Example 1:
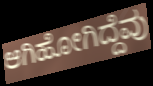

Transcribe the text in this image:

ಆಗಿಹೋಗಿದ್ದೆವು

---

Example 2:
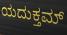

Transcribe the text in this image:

ಯದುಕ್ತಮ್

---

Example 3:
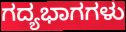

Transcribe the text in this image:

ಗದ್ಯಭಾಗಗಳು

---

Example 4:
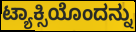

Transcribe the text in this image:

ಟ್ಯಾಕ್ಸಿಯೊಂದನ್ನು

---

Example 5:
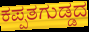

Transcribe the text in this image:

ಕಪ್ಪತಗುಡ್ಡದ